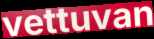
vettuvan